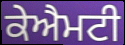
ਕੇਐਮਟੀ